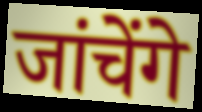
जांचेंगे